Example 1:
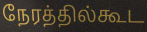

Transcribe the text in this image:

நேரத்தில்கூட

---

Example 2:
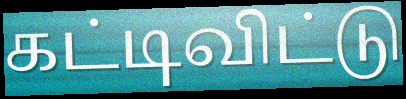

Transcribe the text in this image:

கட்டிவிட்டு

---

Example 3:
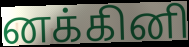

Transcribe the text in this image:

னக்கினி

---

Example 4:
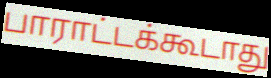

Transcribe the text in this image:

பாராட்டக்கூடாது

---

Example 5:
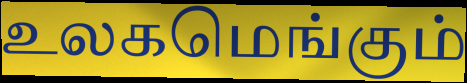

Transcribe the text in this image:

உலகமெங்கும்